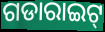
ଗଡାରାଇଟ୍